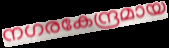
നഗരകേന്ദ്രമായ